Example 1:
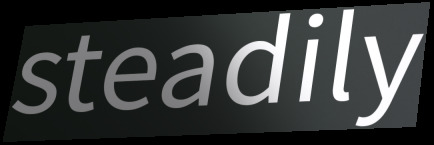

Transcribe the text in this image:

steadily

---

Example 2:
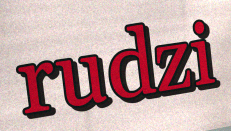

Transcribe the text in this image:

rudzi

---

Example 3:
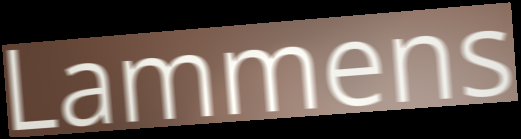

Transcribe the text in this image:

Lammens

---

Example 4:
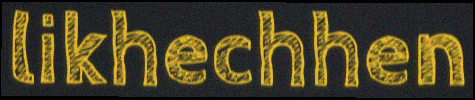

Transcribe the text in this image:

likhechhen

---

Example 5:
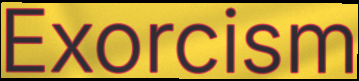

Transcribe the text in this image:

Exorcism